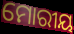
ମୋରୀୟ